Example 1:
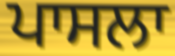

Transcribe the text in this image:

ਪਾਸਲਾ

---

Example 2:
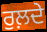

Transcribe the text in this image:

ਰੁਲ਼ਦੇ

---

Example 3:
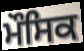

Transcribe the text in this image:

ਮੌਸਿਕ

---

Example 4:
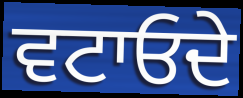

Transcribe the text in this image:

ਵਟਾਓਦੇ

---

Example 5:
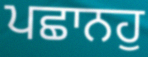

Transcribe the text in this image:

ਪਛਾਨਹੁ